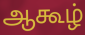
ஆகூழ்